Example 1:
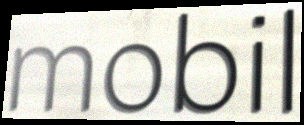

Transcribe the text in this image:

mobil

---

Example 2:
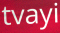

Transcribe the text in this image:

tvayi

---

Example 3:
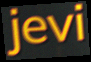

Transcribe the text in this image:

jevi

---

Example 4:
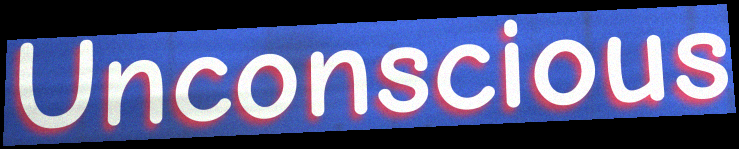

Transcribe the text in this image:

Unconscious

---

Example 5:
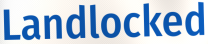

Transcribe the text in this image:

Landlocked